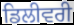
ਡਿਲੀਵਰੀ